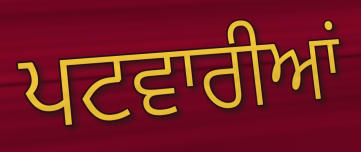
ਪਟਵਾਰੀਆਂ